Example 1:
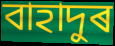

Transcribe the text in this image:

বাহাদুৰ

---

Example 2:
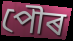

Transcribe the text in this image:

পৌৰ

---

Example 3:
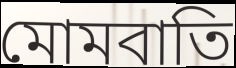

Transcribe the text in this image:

মোমবাতি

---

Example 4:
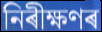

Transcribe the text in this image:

নিৰীক্ষণৰ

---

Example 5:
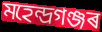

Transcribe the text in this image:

মহেন্দ্ৰগঞ্জৰ